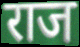
राज